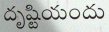
దృష్టియందు